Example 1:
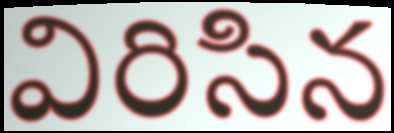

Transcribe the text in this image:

విరిసిన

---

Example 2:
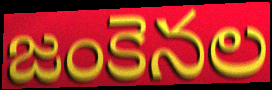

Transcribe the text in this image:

జంకెనల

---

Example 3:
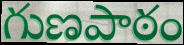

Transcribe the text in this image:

గుణపాఠం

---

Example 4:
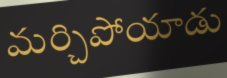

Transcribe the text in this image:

మర్చిపోయాడు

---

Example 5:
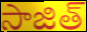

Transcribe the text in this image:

సాజిత్